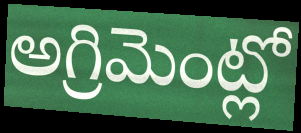
అగ్రిమెంట్లో